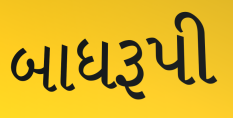
બાધરૂપી